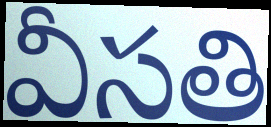
వీసతి